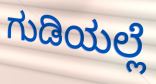
ಗುಡಿಯಲ್ಲೆ